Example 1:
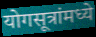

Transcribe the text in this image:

योगसूत्रांमध्ये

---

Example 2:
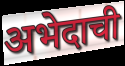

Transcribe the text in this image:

अभेदाची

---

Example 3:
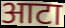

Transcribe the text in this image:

आटा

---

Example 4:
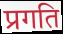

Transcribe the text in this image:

प्रगति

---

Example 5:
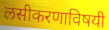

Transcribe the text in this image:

लसीकरणाविषयी